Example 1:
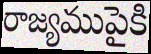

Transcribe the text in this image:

రాజ్యముపైకి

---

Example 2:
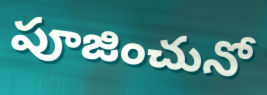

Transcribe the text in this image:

పూజించునో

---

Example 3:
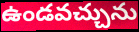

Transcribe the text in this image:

ఉండవచ్చును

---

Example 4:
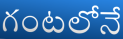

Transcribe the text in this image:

గంటలోనే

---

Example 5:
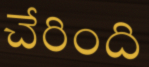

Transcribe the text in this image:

చేరింది